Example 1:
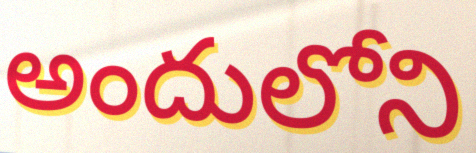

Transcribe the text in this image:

అందులోని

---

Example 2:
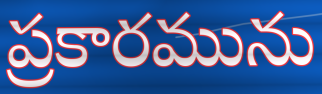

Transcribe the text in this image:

ప్రకారమును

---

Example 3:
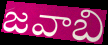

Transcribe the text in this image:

జవాబి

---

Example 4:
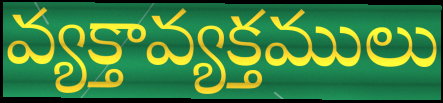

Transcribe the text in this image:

వ్యక్తావ్యక్తములు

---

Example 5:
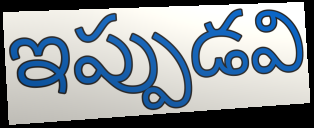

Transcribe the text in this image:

ఇప్పుడవి